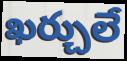
ఖర్చులే